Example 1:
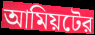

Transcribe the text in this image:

আমিয়টের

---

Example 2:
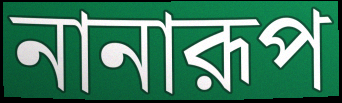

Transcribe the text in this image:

নানারূপ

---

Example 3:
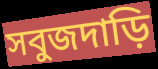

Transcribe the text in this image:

সবুজদাড়ি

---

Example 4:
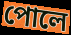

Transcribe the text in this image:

পোলে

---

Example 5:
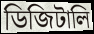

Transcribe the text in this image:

ডিজিটালি